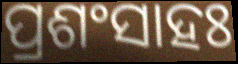
ପ୍ରଶଂସାହଃ